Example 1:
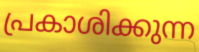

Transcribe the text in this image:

പ്രകാശിക്കുന്ന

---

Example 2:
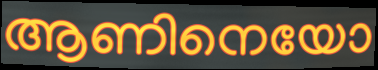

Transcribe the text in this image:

ആണിനെയോ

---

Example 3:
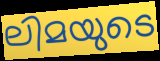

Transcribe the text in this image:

ലിമയുടെ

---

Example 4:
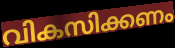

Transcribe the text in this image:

വികസിക്കണം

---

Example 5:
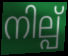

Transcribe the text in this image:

നില്പ്